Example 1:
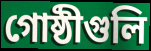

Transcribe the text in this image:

গোষ্ঠীগুলি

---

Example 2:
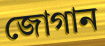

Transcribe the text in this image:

জোগান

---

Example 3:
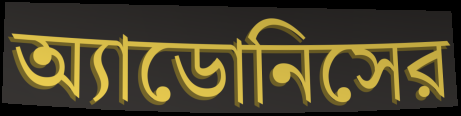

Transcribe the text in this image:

অ্যাডোনিসের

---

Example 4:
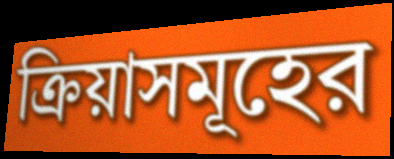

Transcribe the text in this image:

ক্রিয়াসমূহের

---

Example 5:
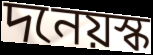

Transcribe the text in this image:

দনেয়স্ক